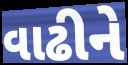
વાઢીને